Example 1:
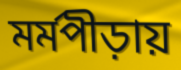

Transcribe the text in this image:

মর্মপীড়ায়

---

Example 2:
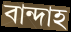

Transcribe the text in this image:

বান্দাহ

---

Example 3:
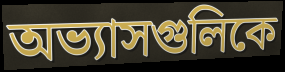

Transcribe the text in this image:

অভ্যাসগুলিকে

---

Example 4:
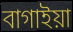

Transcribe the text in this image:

বাগাইয়া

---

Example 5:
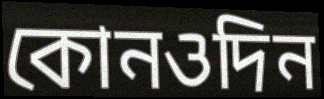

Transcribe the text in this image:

কোনওদিন